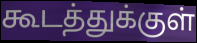
கூடத்துக்குள்